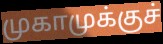
முகாமுக்குச்